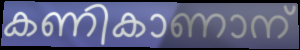
കണികാണാന്